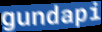
gundapi